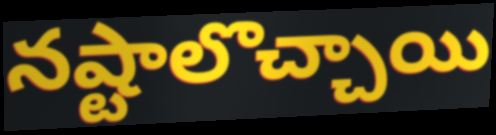
నష్టాలొచ్చాయి